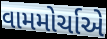
વામમોર્ચાએ